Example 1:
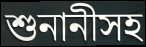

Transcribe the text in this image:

শুনানীসহ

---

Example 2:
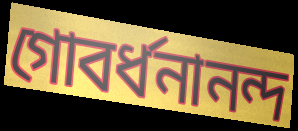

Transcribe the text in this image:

গোবর্ধনানন্দ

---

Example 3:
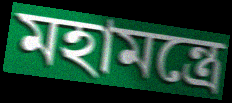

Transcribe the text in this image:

মহামন্ত্রে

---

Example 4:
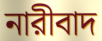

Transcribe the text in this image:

নারীবাদ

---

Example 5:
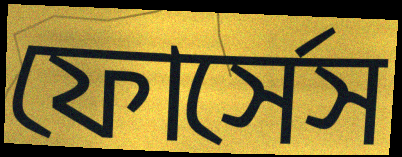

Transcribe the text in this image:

ফোর্সেস